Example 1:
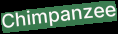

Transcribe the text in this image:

Chimpanzee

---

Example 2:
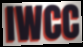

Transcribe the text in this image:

IWCC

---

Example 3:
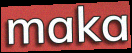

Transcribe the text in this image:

maka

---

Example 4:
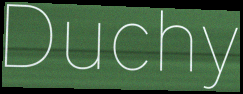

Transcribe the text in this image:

Duchy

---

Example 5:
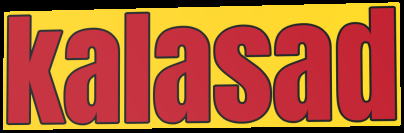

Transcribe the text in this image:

kalasad